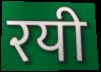
रयी